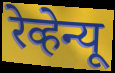
रेव्हेन्यू